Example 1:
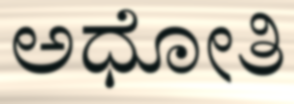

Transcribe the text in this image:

ಅಧೋತಿ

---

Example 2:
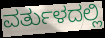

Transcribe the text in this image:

ವರ್ತುಳದಲ್ಲಿ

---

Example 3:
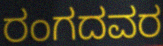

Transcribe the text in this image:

ರಂಗದವರ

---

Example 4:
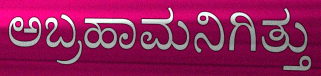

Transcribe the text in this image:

ಅಬ್ರಹಾಮನಿಗಿತ್ತು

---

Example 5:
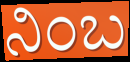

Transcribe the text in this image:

ನಿಂಬ